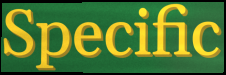
Specific